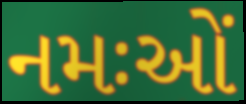
નમઃઓં